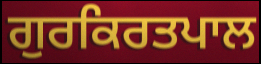
ਗੁਰਕਿਰਤਪਾਲ